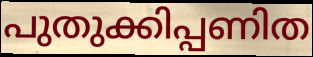
പുതുക്കിപ്പണിത